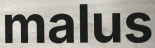
malus